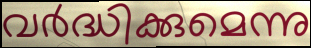
വർദ്ധിക്കുമെന്നു